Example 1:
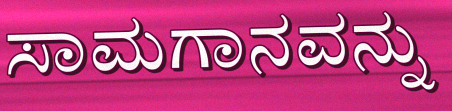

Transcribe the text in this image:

ಸಾಮಗಾನವನ್ನು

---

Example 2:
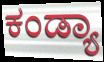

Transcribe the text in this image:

ಕಂಡ್ಯಾ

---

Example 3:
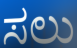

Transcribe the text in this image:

ಸಲು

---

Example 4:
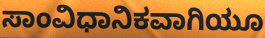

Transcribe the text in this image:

ಸಾಂವಿಧಾನಿಕವಾಗಿಯೂ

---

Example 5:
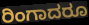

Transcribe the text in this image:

ರಿಂಗಾದರೂ